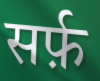
सर्फ़